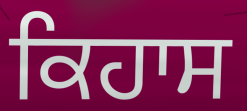
ਕਿਹਾਸ